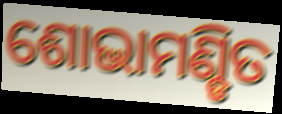
ଶୋଭାମଣ୍ଡିତ